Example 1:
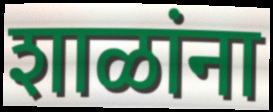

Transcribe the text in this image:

शाळांना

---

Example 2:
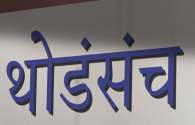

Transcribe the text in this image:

थोडंसंच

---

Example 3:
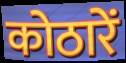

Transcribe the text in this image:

कोठारें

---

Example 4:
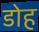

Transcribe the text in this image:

डोह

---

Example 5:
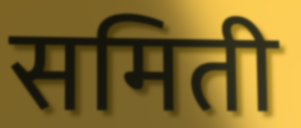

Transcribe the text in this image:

समिती